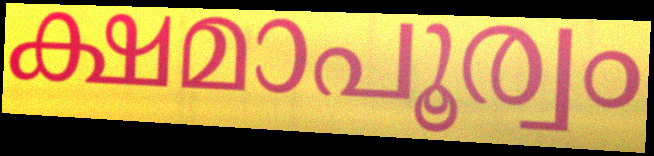
ക്ഷമാപൂര്വം